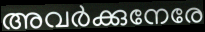
അവർക്കുനേരേ